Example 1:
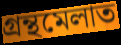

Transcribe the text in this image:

গ্ৰন্থমেলাত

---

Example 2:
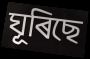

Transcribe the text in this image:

ঘূৰিছে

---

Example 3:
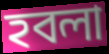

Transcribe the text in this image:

হবলা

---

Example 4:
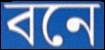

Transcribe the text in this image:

বনে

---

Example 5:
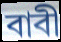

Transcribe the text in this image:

বাবী